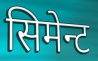
सिमेन्ट